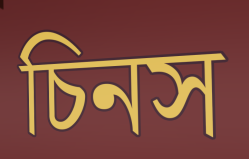
চিনস